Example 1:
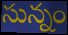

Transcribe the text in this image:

సున్నం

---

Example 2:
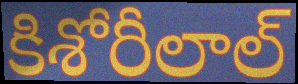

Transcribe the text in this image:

కిశోరీలాల్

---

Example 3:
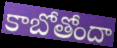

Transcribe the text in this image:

కాబోతోందా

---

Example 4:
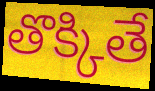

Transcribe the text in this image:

తొక్కితే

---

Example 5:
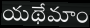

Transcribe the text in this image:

యథేమాం